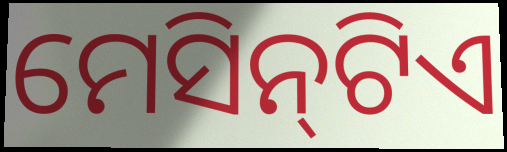
ମେସିନ୍‌ଟିଏ